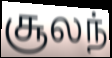
சூலந்